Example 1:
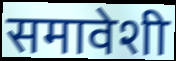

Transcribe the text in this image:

समावेशी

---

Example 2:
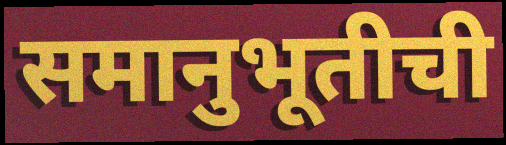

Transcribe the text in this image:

समानुभूतीची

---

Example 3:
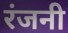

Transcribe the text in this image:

रंजनी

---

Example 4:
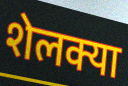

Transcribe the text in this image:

शेलक्या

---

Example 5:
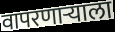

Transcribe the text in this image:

वापरणार्‍याला